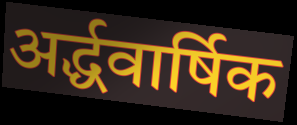
अर्द्धवार्षिक